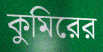
কুমিরের